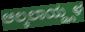
ಆಲ್ಕಲಾಯ್ಡ್ಗಳ